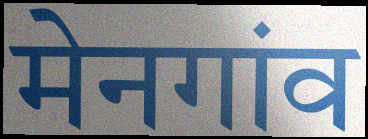
मेनगांव